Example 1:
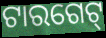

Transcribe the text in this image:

ଟାରଗେଟ୍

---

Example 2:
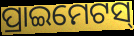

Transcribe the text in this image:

ପ୍ରାଇମେଟସ୍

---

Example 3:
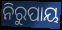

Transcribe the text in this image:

ନିରୁପାୟ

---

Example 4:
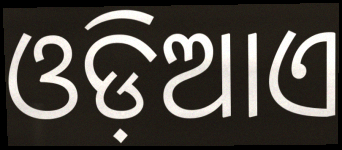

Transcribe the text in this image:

ଓଡ଼ିଆଏ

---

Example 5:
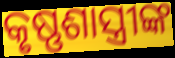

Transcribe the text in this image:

କୃଷ୍ଣଶାସ୍ତ୍ରୀଙ୍କ